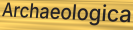
Archaeologica